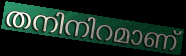
തനിനിറമാണ്